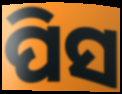
ପିସ